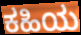
ಕಹಿಯ